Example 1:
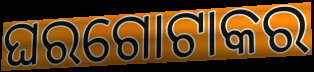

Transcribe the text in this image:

ଘରଗୋଟାକର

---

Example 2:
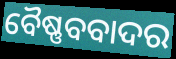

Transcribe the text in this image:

ବୈଷ୍ଣବବାଦର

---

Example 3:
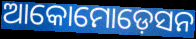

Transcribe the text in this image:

ଆକୋମୋଡ଼େସନ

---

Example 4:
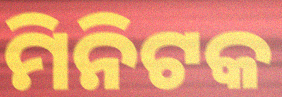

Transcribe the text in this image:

ମିନିଟକ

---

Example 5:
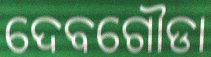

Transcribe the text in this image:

ଦେବଗୌଡା